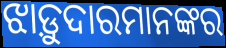
ଝାଡ଼ୁଦାରମାନଙ୍କର